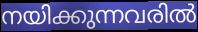
നയിക്കുന്നവരിൽ